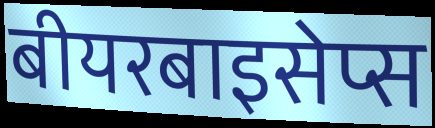
बीयरबाइसेप्स